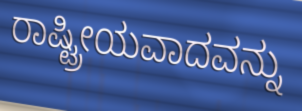
ರಾಷ್ಟ್ರೀಯವಾದವನ್ನು